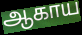
ஆகாய